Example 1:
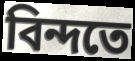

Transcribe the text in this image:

বিন্দতে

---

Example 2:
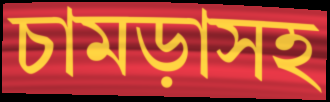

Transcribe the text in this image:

চামড়াসহ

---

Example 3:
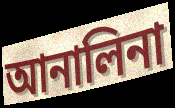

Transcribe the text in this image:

আনালিনা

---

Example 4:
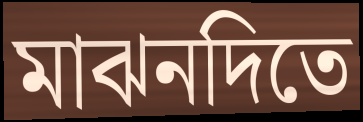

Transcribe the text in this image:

মাঝনদিতে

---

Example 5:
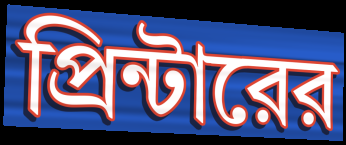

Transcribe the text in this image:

প্রিন্টারের